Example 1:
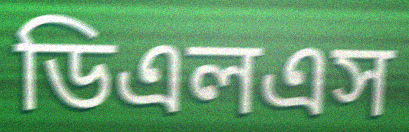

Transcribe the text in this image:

ডিএলএস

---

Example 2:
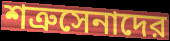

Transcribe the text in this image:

শত্রুসেনাদের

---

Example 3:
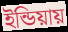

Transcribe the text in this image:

ইন্ডিয়ায়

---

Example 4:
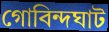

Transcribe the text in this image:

গোবিন্দঘাট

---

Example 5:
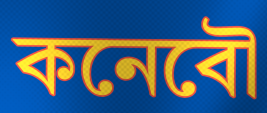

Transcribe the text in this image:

কনেবৌ